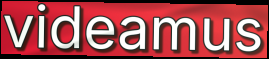
videamus